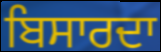
ਬਿਸਾਰਦਾ